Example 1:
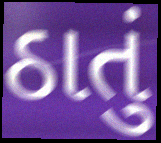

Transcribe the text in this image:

ઠાતું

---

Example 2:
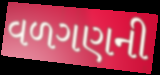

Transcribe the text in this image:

વળગણની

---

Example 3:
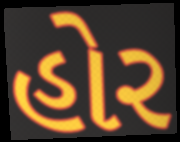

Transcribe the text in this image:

હોર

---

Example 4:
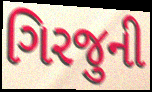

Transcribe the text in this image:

ગિરજુની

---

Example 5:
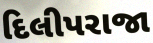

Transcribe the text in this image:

દિલીપરાજા